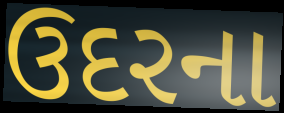
ઉદરના